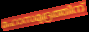
മഹാസമുദ്രത്തിന്